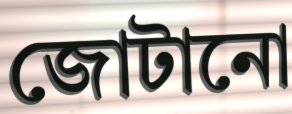
জোটানো